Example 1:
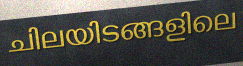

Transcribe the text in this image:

ചിലയിടങ്ങളിലെ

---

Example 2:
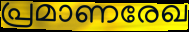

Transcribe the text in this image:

പ്രമാണരേഖ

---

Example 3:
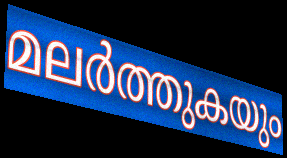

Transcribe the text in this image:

മലർത്തുകയും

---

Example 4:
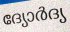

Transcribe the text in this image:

ദ്യോർദ്യ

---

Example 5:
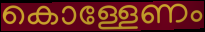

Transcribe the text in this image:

കൊള്ളേണം